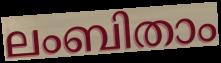
ലംബിതാം